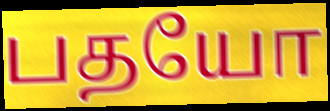
பதயோ